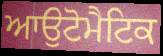
ਆਉਟੋਮੈਟਿਕ